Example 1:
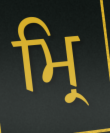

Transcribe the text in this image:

ਮ੍ਰਿ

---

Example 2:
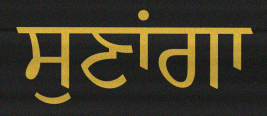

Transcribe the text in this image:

ਸੁਣਾਂਗਾ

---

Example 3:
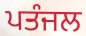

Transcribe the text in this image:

ਪਤੰਜਲ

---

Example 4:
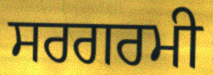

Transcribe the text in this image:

ਸਰਗਰਮੀ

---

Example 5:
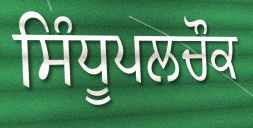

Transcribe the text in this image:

ਸਿੰਧੂਪਲਚੌਕ